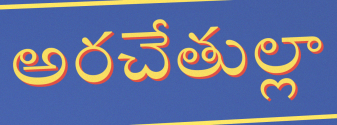
అరచేతుల్లా